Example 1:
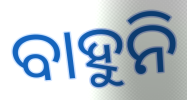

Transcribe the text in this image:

ବାହୁନି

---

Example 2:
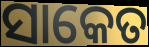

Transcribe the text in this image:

ସାକେତ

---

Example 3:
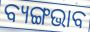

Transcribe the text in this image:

ବ୍ୟଙ୍ଗଭାବ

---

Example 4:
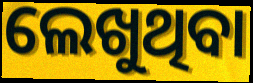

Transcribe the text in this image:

ଲେଖୁଥିବା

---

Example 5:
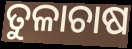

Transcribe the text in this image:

ତୁଳାଚାଷ